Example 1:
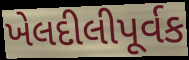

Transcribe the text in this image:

ખેલદીલીપૂર્વક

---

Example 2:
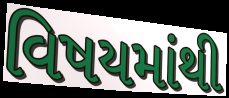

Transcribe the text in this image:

વિષયમાંથી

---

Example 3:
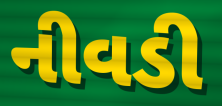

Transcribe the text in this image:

નીવડી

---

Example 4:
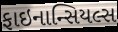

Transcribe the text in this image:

ફાઇનાન્સિયલ્સ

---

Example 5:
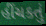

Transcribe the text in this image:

હીંચકતું